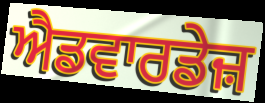
ਐਡਵਾਰਡੇਜ਼